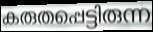
കരുതപ്പെട്ടിരുന്ന